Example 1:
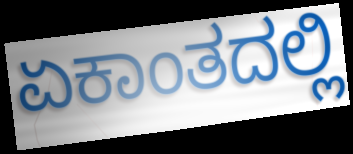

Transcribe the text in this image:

ಏಕಾಂತದಲ್ಲಿ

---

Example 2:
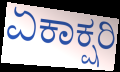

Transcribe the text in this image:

ಏಕಾಕ್ಷರಿ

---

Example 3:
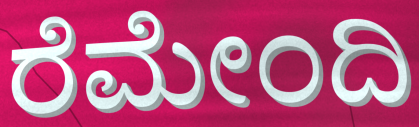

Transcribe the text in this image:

ರೆಮೇಂದಿ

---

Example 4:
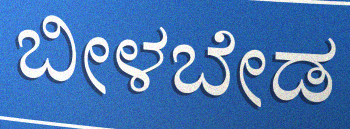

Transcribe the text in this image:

ಬೀಳಬೇಡ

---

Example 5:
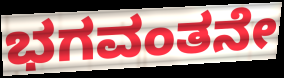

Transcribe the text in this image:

ಭಗವಂತನೇ